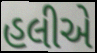
હલીએ